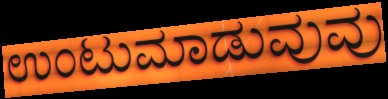
ಉಂಟುಮಾಡುವುವು